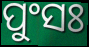
ପୁଂସଃ